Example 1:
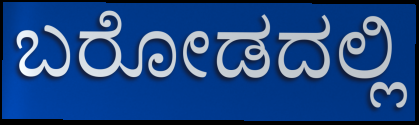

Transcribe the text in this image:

ಬರೋಡದಲ್ಲಿ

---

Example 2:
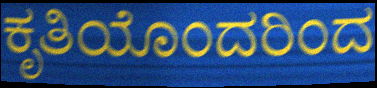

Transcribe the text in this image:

ಕೃತಿಯೊಂದರಿಂದ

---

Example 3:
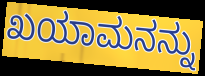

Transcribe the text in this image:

ಖಯಾಮನನ್ನು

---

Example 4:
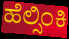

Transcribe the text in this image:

ಹೆಲ್ಸಿಂಕಿ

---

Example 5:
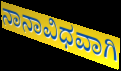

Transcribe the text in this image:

ನಾನಾವಿಧವಾಗಿ